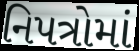
નિપત્રોમાં